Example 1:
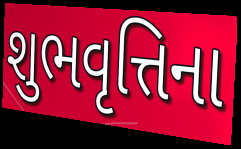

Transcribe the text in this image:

શુભવૃત્તિના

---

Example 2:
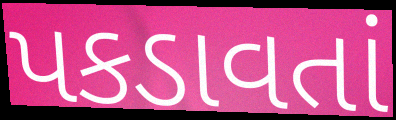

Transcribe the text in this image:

પકડાવતાં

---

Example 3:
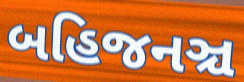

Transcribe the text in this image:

બહિજનઞ્ચ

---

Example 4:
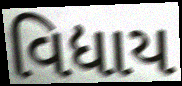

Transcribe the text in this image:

વિદ્યાય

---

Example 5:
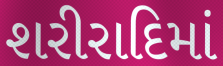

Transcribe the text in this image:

શરીરાદિમાં